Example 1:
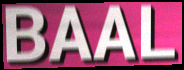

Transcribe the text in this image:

BAAL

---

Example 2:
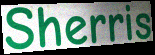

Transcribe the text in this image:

Sherris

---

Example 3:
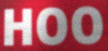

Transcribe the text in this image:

HOO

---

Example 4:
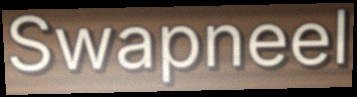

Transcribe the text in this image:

Swapneel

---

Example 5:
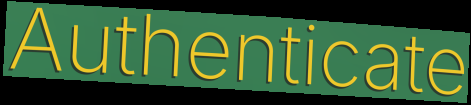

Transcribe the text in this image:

Authenticate